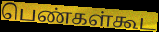
பெண்கள்கூட